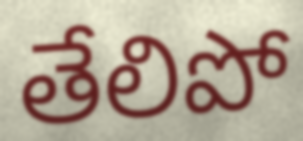
తేలిపో